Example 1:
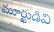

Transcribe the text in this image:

మూర్ఖుడివి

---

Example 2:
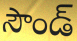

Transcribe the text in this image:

సౌండ్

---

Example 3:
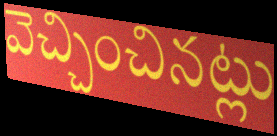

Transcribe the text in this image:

వెచ్చించినట్లు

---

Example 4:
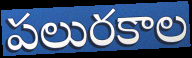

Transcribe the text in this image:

పలురకాల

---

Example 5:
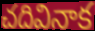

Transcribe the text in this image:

చదివినాక